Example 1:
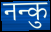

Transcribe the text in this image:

नन्कु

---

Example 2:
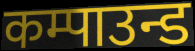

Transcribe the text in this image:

कम्पाउन्ड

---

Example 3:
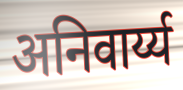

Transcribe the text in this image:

अनिवार्य्य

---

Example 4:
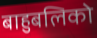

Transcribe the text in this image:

बाहुबलिको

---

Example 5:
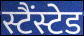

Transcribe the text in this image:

स्टैंस्टेड